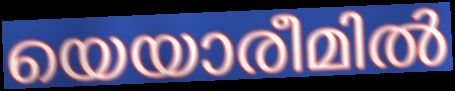
യെയാരീമിൽ